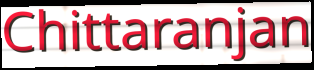
Chittaranjan